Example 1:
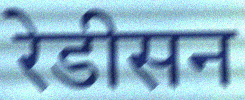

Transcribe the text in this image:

रेडीसन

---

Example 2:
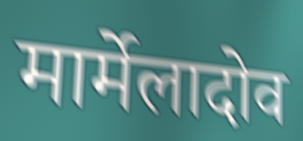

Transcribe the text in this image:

मार्मेलादोव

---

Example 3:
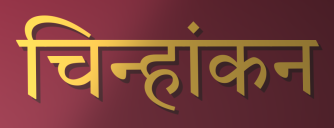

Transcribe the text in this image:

चिन्हांकन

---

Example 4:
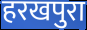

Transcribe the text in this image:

हरखपुरा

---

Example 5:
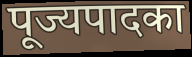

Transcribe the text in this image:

पूज्यपादका